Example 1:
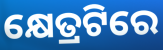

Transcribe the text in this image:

କ୍ଷେତ୍ରଟିରେ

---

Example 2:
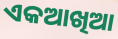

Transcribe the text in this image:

ଏକଆଖିଆ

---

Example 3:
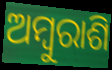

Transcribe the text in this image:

ଅମ୍ୱୁରାଶି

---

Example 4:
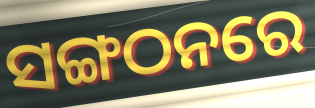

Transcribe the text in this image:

ସଙ୍ଗଠନରେ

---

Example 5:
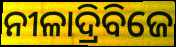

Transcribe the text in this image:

ନୀଳାଦ୍ରିବିଜେ